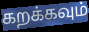
கறக்கவும்